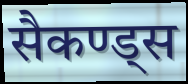
सैकण्ड्स